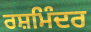
ਰਸ਼ਮਿੰਦਰ